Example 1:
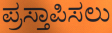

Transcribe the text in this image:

ಪ್ರಸ್ತಾಪಿಸಲು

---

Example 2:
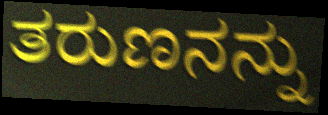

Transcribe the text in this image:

ತರುಣನನ್ನು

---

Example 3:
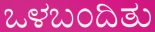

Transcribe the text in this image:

ಒಳಬಂದಿತು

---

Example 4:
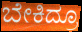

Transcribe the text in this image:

ಬೇಕಿದ್ರೂ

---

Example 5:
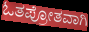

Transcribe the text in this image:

ಓತಪ್ರೋತವಾಗಿ